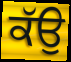
ਕੱਉ